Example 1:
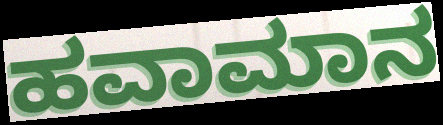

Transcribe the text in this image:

ಹವಾಮಾನ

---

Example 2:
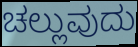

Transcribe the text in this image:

ಚಲ್ಲುವುದು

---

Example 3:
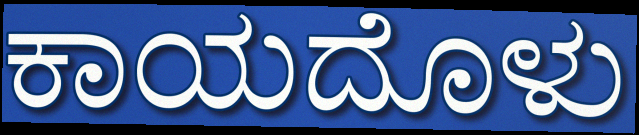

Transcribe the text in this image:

ಕಾಯದೊಳು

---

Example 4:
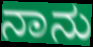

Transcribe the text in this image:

ನಾನು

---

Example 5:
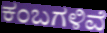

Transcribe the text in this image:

ಕಂಬಗಳಿವೆ